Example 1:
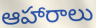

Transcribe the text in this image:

ఆహారాలు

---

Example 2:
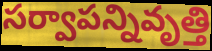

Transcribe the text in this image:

సర్వాపన్నివృత్తి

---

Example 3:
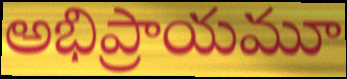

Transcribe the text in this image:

అభిప్రాయమూ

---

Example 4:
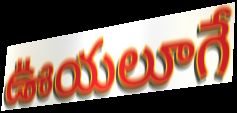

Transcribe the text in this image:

ఊయలూగే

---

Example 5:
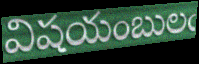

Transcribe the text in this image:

విషయంబులఁ